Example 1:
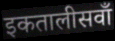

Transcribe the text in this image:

इकतालीसवाँ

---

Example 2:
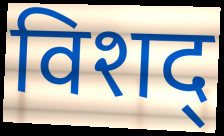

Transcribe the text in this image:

विशद्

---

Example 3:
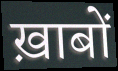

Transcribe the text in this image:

ख़ाबों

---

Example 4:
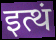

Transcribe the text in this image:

इत्थं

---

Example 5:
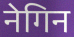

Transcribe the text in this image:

नेगिन